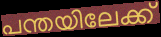
പന്തയിലേക്ക്